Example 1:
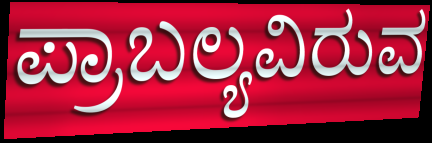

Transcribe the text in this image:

ಪ್ರಾಬಲ್ಯವಿರುವ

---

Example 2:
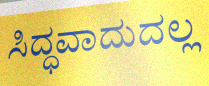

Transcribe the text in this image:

ಸಿದ್ಧವಾದುದಲ್ಲ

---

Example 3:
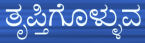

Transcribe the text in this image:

ತೃಪ್ತಿಗೊಳ್ಳುವ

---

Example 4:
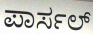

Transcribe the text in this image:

ಪಾರ್ಸಲ್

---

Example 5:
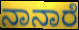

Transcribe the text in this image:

ನಾನಾರೆ